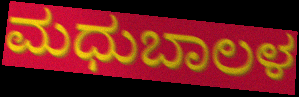
ಮಧುಬಾಲಳ